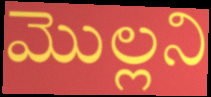
మొల్లని